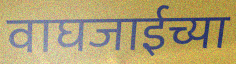
वाघजाईच्या